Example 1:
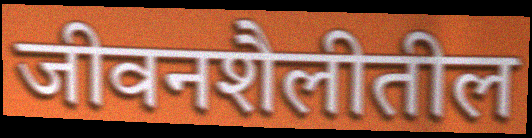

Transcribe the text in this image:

जीवनशैलीतील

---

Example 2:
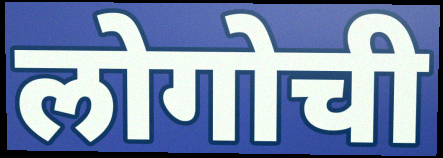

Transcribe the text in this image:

लोगोची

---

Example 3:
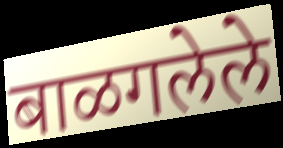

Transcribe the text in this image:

बाळगलेले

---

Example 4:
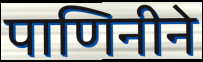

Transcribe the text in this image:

पाणिनीने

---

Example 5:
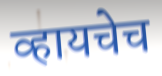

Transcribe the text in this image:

व्हायचेच